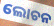
ଲୋଚନ